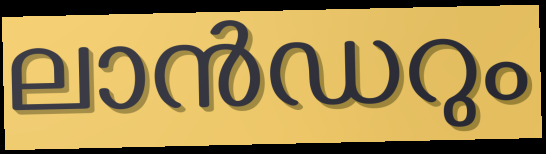
ലാൻഡറും